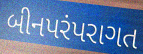
બીનપરંપરાગત